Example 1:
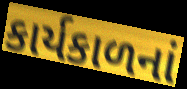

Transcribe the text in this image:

કાર્યકાળનાં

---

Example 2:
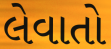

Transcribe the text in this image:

લેવાતો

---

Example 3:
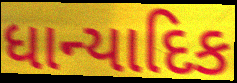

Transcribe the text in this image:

ધાન્યાદિક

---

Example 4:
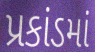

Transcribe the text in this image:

પ્રકાંડમાં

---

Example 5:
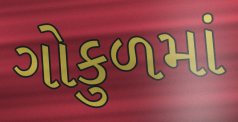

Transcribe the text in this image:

ગોકુળમાં